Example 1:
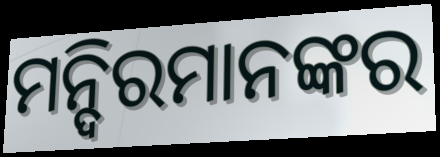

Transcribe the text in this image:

ମନ୍ଦିରମାନଙ୍କର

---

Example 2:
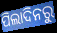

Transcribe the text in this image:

ପିଲାଦିନରୁ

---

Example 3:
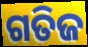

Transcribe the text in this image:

ଗତିଜ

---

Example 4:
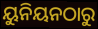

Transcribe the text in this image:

ୟୁନିୟନଠାରୁ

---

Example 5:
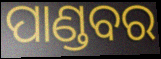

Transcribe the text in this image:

ପାଣ୍ଡବର